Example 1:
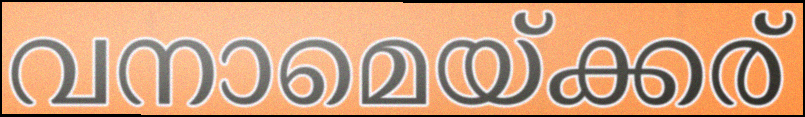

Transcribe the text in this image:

വനാമെയ്ക്കര്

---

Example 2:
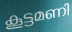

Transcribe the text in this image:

കൂട്ടമണി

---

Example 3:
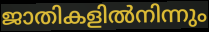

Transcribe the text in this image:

ജാതികളിൽനിന്നും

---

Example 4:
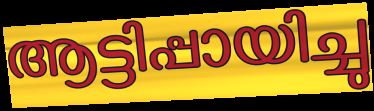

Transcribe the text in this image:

ആട്ടിപ്പായിച്ചു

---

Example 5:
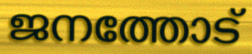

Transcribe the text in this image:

ജനത്തോട്